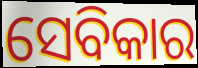
ସେବିକାର